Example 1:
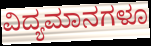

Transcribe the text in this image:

ವಿದ್ಯಮಾನಗಳೂ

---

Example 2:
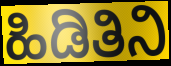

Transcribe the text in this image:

ಹಿಡಿತಿನಿ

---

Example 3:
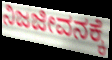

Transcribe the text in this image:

ನಿಜಜೀವನಕ್ಕೆ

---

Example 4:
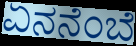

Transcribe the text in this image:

ಏನನೆಂಬೆ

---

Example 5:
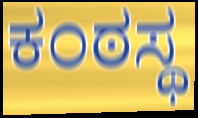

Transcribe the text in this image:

ಕಂಠಸ್ಥ